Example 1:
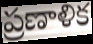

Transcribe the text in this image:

ప్రణాళిక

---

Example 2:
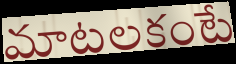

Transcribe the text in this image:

మాటలకంటే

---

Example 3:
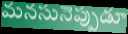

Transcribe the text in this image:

మనసునెప్పుడూ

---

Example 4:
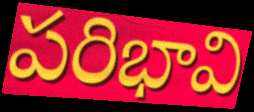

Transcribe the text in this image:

పరిభావి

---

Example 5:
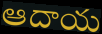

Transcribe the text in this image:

ఆదాయ